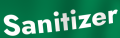
Sanitizer